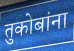
तुकोबांना